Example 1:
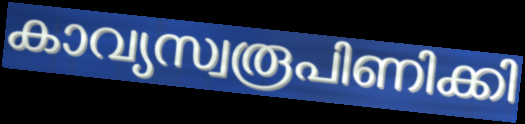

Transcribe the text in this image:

കാവ്യസ്വരൂപിണിക്കി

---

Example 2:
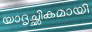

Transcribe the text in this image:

യാദൃച്ഛികമായി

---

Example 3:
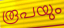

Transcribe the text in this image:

രൂപയും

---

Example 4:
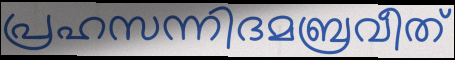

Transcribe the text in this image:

പ്രഹസന്നിദമബ്രവീത്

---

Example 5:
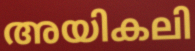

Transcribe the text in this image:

അയികലി